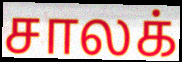
சாலக்